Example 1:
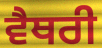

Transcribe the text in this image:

ਵੈਥਰੀ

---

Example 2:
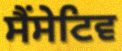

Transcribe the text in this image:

ਸੈਂਸੇਟਿਵ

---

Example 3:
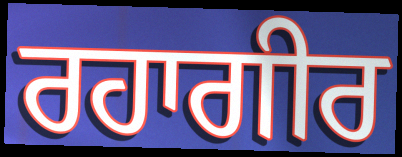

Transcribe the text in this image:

ਰਹਾਗੀਰ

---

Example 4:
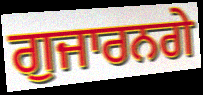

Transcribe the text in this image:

ਗੁਜਾਰਨਗੇ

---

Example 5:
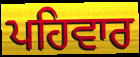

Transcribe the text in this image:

ਪਹਿਵਾਰ